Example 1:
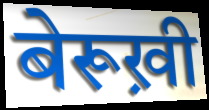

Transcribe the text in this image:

बेरूख़ी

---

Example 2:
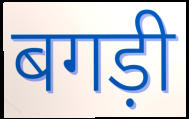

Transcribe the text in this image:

बगड़ी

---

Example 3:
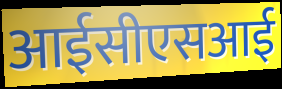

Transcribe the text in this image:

आईसीएसआई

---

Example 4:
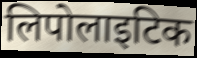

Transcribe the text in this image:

लिपोलाइटिक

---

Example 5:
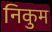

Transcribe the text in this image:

निकुम